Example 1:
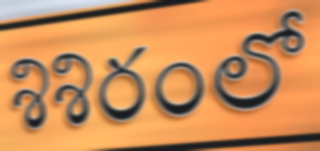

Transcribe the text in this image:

శిశిరంలో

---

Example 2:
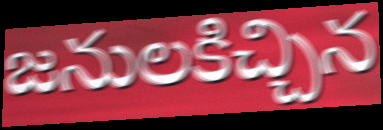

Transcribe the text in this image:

జనులకిచ్చిన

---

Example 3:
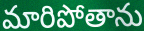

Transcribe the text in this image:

మారిపోతాను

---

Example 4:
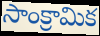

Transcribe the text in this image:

సాంక్రామిక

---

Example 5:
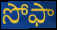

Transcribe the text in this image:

సోఫా